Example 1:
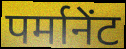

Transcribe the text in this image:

पर्मानेंट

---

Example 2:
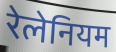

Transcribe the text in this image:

रेलेनियम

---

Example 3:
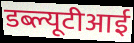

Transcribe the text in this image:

डब्ल्यूटीआई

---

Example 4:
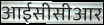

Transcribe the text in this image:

आईसीसीआर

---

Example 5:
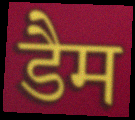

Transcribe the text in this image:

डैम